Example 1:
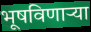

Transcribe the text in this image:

भूषविणाऱ्या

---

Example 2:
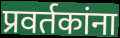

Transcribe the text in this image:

प्रवर्तकांना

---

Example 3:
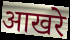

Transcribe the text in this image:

आखरे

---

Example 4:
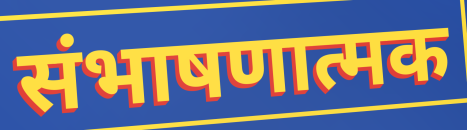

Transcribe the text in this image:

संभाषणात्मक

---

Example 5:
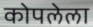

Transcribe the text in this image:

कोपलेला